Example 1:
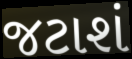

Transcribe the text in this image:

જટાશં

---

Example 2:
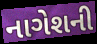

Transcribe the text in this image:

નાગેશની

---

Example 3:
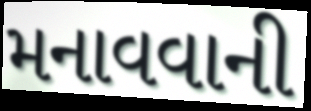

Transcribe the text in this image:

મનાવવાની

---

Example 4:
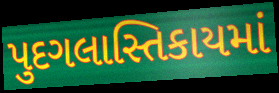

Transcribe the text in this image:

પુદગલાસ્તિકાયમાં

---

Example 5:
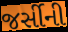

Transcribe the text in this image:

જર્સીની